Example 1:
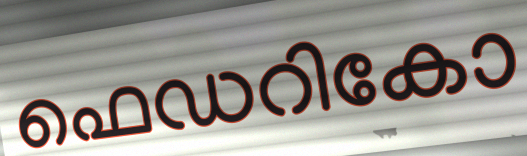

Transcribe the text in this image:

ഫെഡറികോ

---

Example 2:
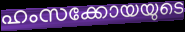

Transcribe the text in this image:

ഹംസക്കോയയുടെ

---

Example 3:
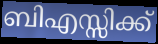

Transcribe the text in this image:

ബിഎസ്സിക്ക്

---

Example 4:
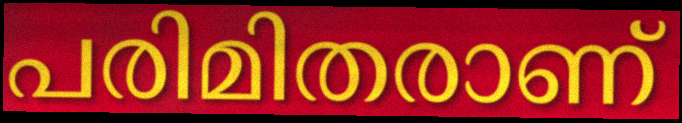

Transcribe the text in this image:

പരിമിതരാണ്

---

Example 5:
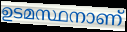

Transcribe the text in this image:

ഉടമസ്ഥനാണ്